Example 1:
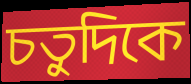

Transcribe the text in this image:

চতুদিকে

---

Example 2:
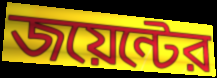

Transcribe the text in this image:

জয়েন্টের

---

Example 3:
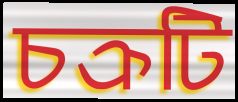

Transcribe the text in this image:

চক্রটি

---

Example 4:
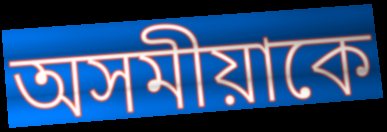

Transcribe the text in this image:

অসমীয়াকে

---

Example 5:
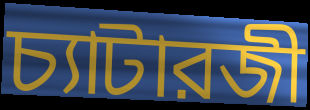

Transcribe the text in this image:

চ্যাটারজী